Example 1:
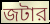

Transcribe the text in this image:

জটার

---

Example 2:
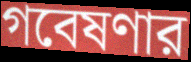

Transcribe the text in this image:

গবেষণার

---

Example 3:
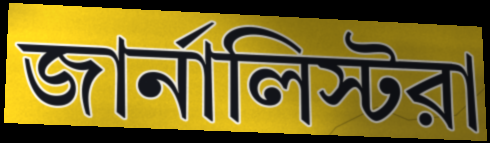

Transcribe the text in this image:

জার্নালিস্টরা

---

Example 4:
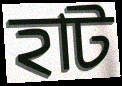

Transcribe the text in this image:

হাট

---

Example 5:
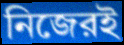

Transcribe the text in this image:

নিজেরই